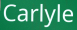
Carlyle